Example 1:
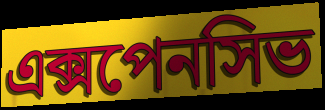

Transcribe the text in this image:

এক্সপেনসিভ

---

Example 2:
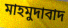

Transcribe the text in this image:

মাহমুদাবাদ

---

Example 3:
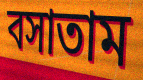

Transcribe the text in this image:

বসাতাম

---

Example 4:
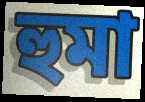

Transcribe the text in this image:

হুমা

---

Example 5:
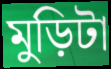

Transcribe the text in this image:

মুড়িটা